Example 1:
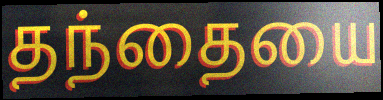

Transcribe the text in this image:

தந்தையை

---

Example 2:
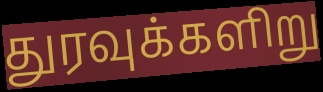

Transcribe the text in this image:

துரவுக்களிறு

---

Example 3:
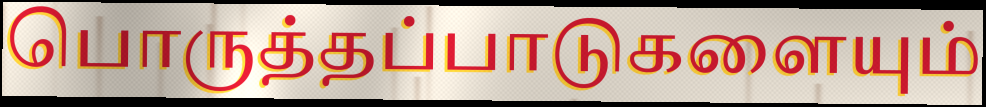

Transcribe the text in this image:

பொருத்தப்பாடுகளையும்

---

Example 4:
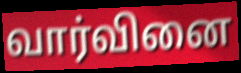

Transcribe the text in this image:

வார்வினை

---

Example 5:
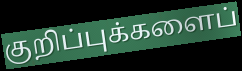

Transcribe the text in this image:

குறிப்புக்களைப்